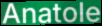
Anatole